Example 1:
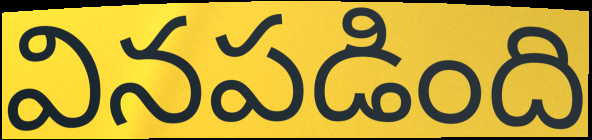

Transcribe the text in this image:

వినపడింది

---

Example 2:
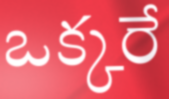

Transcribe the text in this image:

ఒక్కరే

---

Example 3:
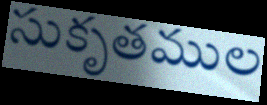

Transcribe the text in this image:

సుకృతముల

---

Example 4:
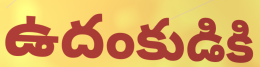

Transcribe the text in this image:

ఉదంకుడికి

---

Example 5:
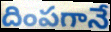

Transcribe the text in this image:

దింపగానే